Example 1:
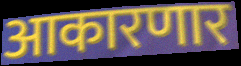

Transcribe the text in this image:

आकारणार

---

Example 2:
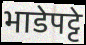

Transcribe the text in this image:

भाडेपट्टे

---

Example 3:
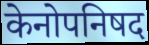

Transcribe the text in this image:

केनोपनिषद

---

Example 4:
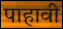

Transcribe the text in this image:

पाहावी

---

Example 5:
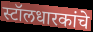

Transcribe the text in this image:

स्टॉलधारकांचे